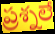
ప్రశ్నలే